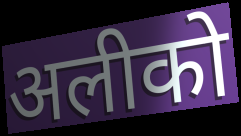
अलीको